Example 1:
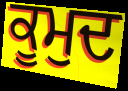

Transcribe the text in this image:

ਕੂਮੁਦ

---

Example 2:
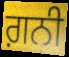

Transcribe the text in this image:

ਗ਼ਨੀ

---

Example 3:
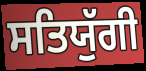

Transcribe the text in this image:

ਸਤਿਯੁੱਗੀ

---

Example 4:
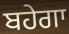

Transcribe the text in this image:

ਬਹੇਗਾ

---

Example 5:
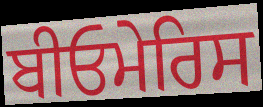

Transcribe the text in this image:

ਬੀਓਮੇਰਿਸ